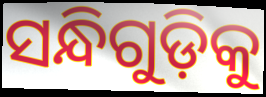
ସନ୍ଧିଗୁଡ଼ିକୁ